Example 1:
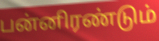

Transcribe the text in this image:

பன்னிரண்டும்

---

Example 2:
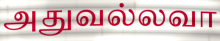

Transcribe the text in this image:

அதுவல்லவா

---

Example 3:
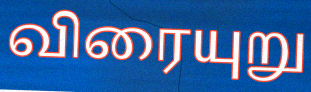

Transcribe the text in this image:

விரையுறு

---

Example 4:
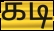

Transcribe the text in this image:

கடி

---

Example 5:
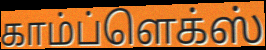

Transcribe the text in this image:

காம்ப்ளெக்ஸ்